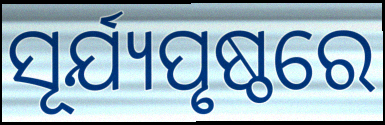
ସୂର୍ଯ୍ୟପୃଷ୍ଠରେ